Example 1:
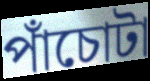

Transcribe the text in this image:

পাঁচোটা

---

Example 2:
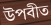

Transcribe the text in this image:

উপবীত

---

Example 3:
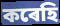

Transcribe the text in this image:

কৰেহি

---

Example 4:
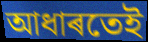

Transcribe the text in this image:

আধাৰতেই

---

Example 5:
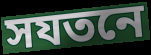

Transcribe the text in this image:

সযতনে